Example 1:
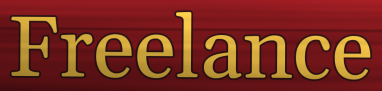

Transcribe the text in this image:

Freelance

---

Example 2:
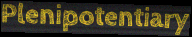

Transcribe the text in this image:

Plenipotentiary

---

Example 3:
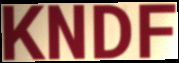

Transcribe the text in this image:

KNDF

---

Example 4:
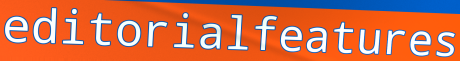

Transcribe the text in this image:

editorialfeatures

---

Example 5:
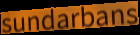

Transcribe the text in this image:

sundarbans